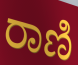
ರಾಣಿ